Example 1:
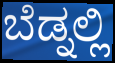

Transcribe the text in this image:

ಬೆಡ್ನಲ್ಲಿ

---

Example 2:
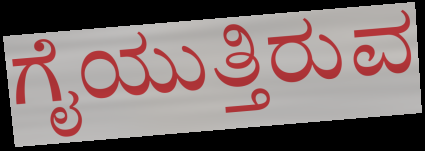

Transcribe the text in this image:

ಗೈಯುತ್ತಿರುವ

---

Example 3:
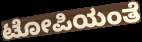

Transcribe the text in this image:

ಟೋಪಿಯಂತೆ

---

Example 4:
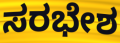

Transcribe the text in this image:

ಸರಭೇಶ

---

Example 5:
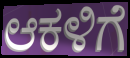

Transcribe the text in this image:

ಆಕಳಿಗೆ